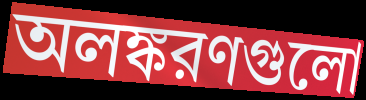
অলঙ্করণগুলো